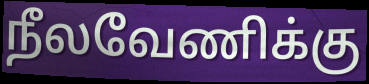
நீலவேணிக்கு